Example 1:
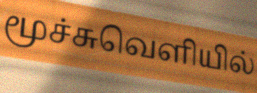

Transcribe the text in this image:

மூச்சுவெளியில்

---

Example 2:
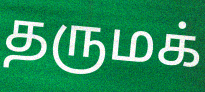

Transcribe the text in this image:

தருமக்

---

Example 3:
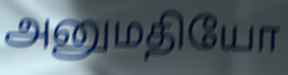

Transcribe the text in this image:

அனுமதியோ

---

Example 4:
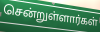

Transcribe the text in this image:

சென்றுள்ளார்கள்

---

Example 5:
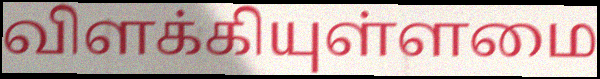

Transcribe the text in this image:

விளக்கியுள்ளமை